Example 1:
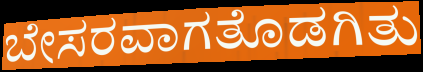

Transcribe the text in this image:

ಬೇಸರವಾಗತೊಡಗಿತು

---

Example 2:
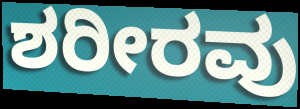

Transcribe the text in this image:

ಶರೀರವು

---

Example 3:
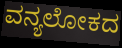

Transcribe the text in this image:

ವನ್ಯಲೋಕದ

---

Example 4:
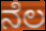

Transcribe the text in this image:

ನೆಲ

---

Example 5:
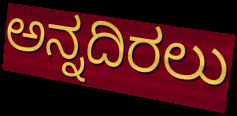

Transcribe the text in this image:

ಅನ್ನದಿರಲು